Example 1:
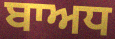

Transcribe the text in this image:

ਬਾਅਧ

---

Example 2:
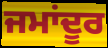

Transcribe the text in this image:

ਜਮਾਂਦੂਰ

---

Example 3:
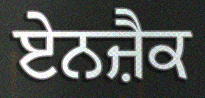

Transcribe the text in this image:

ਏਨਜ਼ੈਕ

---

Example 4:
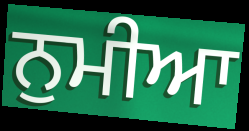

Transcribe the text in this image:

ਨੁਮੀਆ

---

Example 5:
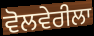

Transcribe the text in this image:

ਵੋਲਵੇਰੀਲਾ